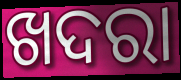
ଖଦରା